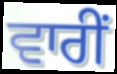
ਵਾਰੀਂ